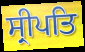
ਸ੍ਰੀਪਤਿ